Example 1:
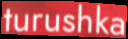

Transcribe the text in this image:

turushka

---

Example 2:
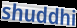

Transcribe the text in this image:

shuddhi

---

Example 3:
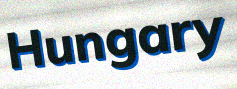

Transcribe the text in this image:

Hungary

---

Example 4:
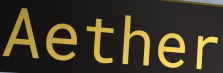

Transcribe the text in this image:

Aether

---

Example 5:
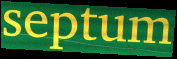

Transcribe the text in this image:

septum